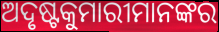
ଅଦୃଷ୍ଟକୁମାରୀମାନଙ୍କର